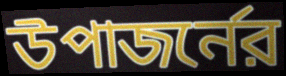
উপাজর্নের